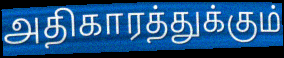
அதிகாரத்துக்கும்